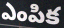
ఎంపిక